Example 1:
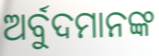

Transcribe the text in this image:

ଅର୍ବୁଦମାନଙ୍କ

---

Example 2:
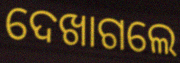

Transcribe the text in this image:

ଦେଖାଗଲେ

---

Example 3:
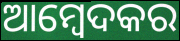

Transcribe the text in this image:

ଆମ୍ବେଦକର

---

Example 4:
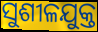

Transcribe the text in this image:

ସୁଶୀଳଯୁକ୍ତ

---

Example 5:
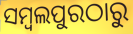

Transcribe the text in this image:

ସମ୍ବଲପୁରଠାରୁ